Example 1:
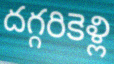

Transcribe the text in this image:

దగ్గరికెళ్లి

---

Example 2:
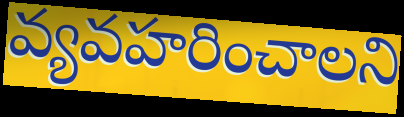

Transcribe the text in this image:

వ్యవహరించాలని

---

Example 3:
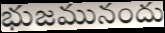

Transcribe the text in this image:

భుజమునందు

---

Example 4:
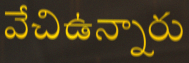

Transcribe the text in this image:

వేచిఉన్నారు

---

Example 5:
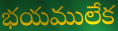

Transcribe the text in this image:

భయములేక